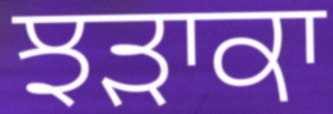
ਝੜਾਕਾ